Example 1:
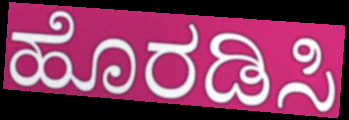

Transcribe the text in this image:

ಹೊರಡಿಸಿ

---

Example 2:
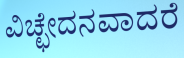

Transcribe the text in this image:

ವಿಚ್ಛೇದನವಾದರೆ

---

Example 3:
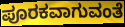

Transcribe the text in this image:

ಪೂರಕವಾಗುವಂತೆ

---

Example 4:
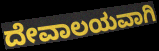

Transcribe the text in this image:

ದೇವಾಲಯವಾಗಿ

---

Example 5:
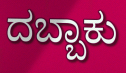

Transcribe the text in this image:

ದಬ್ಬಾಕು